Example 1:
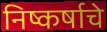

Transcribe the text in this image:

निष्कर्षाचे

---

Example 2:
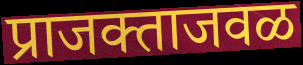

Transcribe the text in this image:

प्राजक्ताजवळ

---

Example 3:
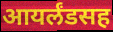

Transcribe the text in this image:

आयर्लंडसह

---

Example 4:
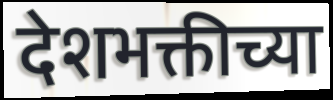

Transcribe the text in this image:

देशभक्तीच्या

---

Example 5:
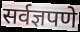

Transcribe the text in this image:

सर्वज्ञपणे